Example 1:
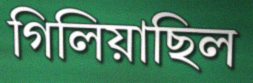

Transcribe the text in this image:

গিলিয়াছিল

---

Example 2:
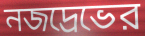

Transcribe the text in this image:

নজদ্রেভের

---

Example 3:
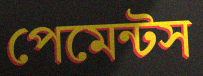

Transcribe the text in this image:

পেমেন্টস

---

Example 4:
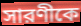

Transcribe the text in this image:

সারণীকে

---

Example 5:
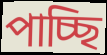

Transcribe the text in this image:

পাচ্ছি